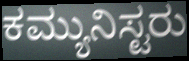
ಕಮ್ಯುನಿಸ್ಟರು